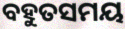
ବହୁତସମୟ